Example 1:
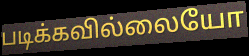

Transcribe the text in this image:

படிக்கவில்லையோ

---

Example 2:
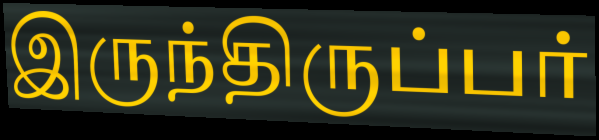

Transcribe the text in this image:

இருந்திருப்பர்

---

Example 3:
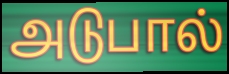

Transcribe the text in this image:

அடுபால்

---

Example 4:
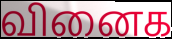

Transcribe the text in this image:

வினைக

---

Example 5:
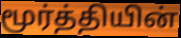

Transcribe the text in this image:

மூர்த்தியின்